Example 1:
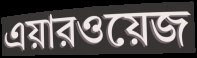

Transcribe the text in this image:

এয়ারওয়েজ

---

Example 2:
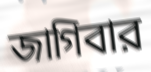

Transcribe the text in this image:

জাগিবার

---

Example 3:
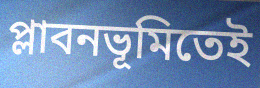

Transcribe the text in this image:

প্লাবনভূমিতেই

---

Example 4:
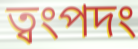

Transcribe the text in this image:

ত্বংপদং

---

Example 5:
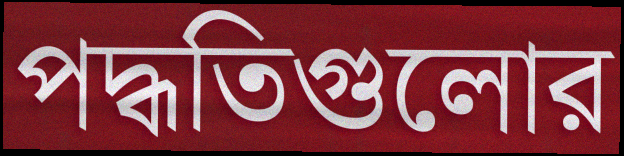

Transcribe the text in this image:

পদ্ধতিগুলোর